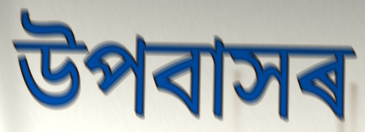
উপবাসৰ